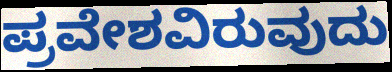
ಪ್ರವೇಶವಿರುವುದು